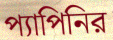
প্যাপিনির